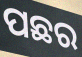
ପଛର